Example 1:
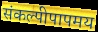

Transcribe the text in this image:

संकल्पीपापमय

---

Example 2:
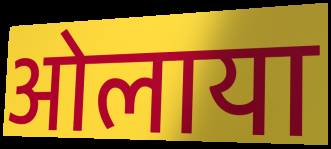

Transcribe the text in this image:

ओलाया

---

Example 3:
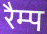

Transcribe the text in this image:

रैम्प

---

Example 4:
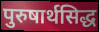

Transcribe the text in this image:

पुरुषार्थसिद्ध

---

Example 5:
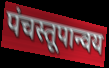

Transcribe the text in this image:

पंचस्तूपान्वय